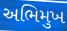
અભિમુખ